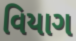
વિયાગ